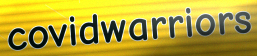
covidwarriors